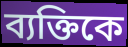
ব্যক্তিকে